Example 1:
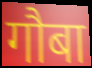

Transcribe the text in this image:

गौबा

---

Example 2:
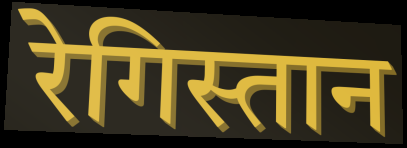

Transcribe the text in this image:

रेगिस्‍तान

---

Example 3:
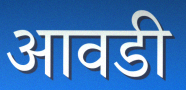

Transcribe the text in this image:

आवडी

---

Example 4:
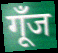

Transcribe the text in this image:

गूँज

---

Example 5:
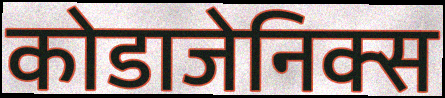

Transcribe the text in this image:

कोडाजेनिक्स